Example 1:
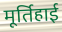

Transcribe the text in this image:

मूर्तिहाई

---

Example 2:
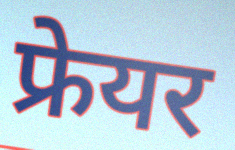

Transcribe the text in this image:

फ्रेयर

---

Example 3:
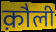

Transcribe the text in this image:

क़ौली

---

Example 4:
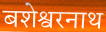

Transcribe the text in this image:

बशेश्वरनाथ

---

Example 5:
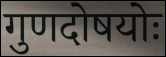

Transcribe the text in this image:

गुणदोषयोः